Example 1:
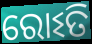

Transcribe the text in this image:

ରୋଽତି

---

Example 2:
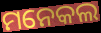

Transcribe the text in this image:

ମନେକଲ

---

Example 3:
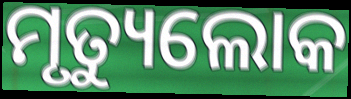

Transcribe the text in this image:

ମୃତ୍ୟୁଲୋକ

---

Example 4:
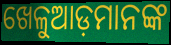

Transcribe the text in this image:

ଖେଳୁଆଡ଼ମାନଙ୍କ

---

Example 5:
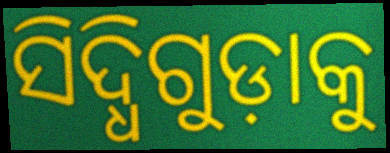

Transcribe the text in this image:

ସିଦ୍ଧିଗୁଡ଼ାକୁ